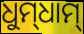
ଧୁମ୍‌ଧାମ୍